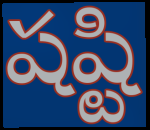
షష్టి